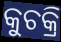
କୁଚକ୍ରି